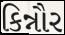
કિન્નૌર